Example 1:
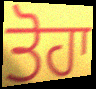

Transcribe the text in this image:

ਤੋਹਾ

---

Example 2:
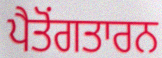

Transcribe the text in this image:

ਪੈਤੋਂਗਤਾਰਨ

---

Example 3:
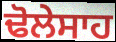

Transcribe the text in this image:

ਢੋਲੇਸਾਹ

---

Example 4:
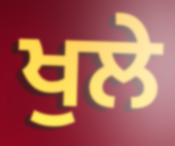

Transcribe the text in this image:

ਖੁਲੇ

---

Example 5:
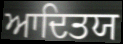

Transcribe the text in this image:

ਆਦਿਤਯ